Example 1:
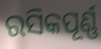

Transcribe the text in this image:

ରସିକପୂର୍ଣ୍ଣ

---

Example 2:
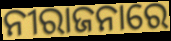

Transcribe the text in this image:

ନୀରାଜନାରେ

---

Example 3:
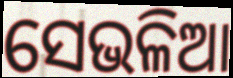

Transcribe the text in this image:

ସେଭଳିଆ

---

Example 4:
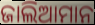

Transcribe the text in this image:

ଜାଲିଆମାନ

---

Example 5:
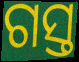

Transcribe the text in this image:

ଗସ୍ତ